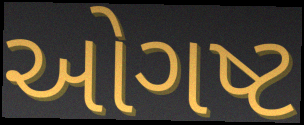
ઓગષ્ટ